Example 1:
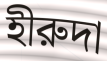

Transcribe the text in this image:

হীরুদা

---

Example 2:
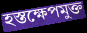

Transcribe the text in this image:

হস্তক্ষেপমুক্ত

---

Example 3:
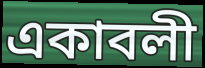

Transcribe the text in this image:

একাবলী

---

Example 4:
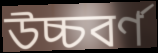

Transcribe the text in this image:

উচ্চবর্ণ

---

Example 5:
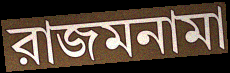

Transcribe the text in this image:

রাজমনামা